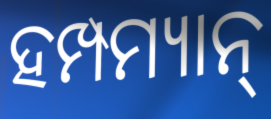
ହମ୍ପମ୍ୟାନ୍